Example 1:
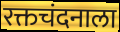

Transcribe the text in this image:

रक्तचंदनाला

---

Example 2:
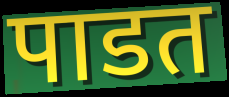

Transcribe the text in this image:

पाडत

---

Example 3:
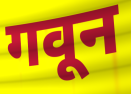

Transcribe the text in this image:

गवून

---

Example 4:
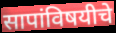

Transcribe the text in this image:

सापांविषयीचे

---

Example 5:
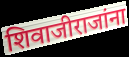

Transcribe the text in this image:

शिवाजीराजांना